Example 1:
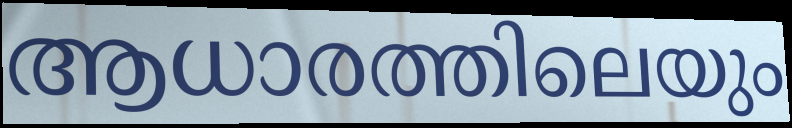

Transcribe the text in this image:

ആധാരത്തിലെയും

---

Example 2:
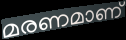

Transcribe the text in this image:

മരണമാണ്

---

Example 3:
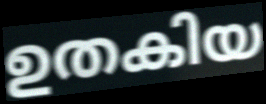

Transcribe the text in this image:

ഉതകിയ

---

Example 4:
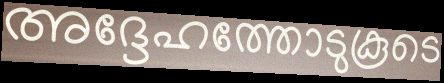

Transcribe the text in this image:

അദ്ദേഹത്തോടുകൂടെ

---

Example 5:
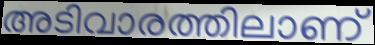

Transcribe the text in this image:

അടിവാരത്തിലാണ്